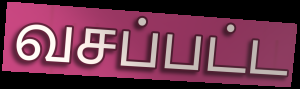
வசப்பட்ட